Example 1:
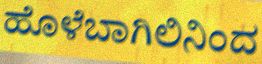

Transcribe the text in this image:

ಹೊಳೆಬಾಗಿಲಿನಿಂದ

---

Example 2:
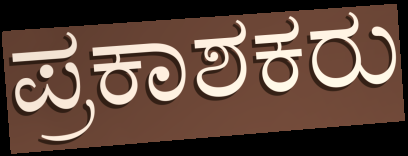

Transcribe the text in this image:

ಪ್ರಕಾಶಕರು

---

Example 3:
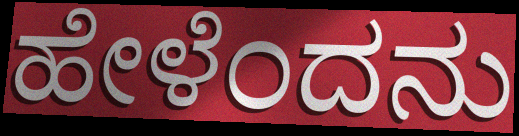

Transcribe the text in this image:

ಹೇಳೆಂದನು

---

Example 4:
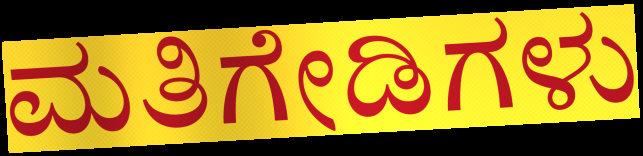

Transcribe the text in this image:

ಮತಿಗೇಡಿಗಳು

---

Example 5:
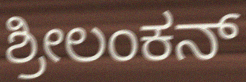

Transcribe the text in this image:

ಶ್ರೀಲಂಕನ್